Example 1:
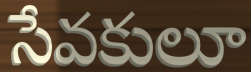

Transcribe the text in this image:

సేవకులూ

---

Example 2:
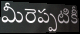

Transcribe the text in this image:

మీరెప్పటికీ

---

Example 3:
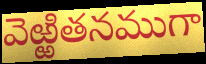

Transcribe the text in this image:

వెఱ్ఱితనముగా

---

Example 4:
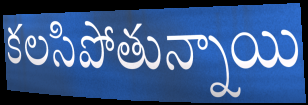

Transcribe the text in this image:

కలసిపోతున్నాయి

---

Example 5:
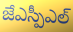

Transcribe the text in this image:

జేఎస్పీఎల్